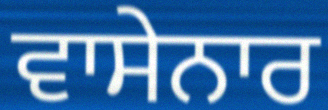
ਵਾਸੇਨਾਰ